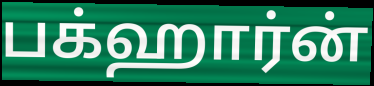
பக்ஹார்ன்